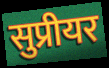
सुप्रीयर